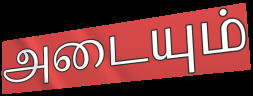
அடையும்